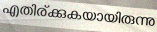
എതിര്ക്കുകയായിരുന്നു